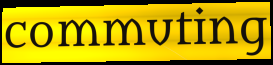
commuting